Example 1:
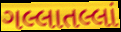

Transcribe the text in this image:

ગલ્લાતલ્લાં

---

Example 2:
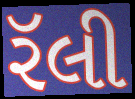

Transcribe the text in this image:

રૅલી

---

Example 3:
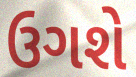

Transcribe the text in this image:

ઉગશે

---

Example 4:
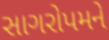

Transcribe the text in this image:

સાગરોપમને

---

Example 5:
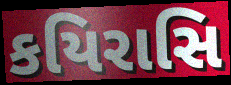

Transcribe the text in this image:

કયિરાસિ